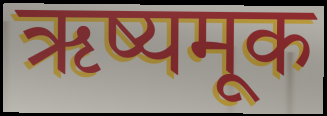
ऋष्यमूक